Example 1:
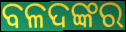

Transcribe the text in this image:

ବଳଦଙ୍କର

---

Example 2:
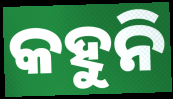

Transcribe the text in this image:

କହୁନି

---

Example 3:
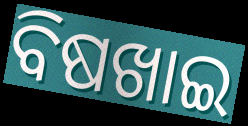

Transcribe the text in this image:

ବିଷଖାଇ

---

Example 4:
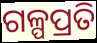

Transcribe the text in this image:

ଗଳ୍ପପ୍ରତି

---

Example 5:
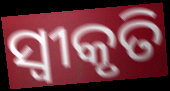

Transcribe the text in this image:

ସ୍ୱୀକୃତି